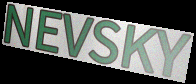
NEVSKY